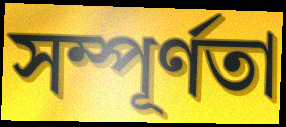
সম্পূর্ণতা